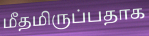
மீதமிருப்பதாக